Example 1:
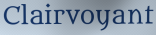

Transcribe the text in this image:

Clairvoyant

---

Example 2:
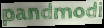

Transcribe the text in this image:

pandmodi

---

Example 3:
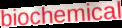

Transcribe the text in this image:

biochemical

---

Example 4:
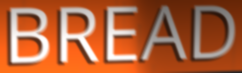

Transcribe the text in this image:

BREAD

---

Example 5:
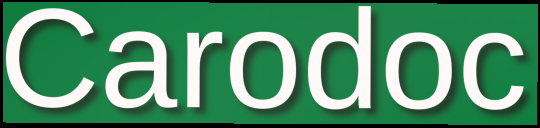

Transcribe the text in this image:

Carodoc